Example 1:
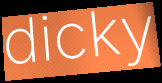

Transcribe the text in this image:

dicky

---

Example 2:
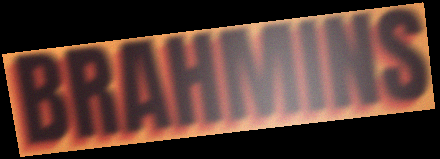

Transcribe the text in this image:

BRAHMINS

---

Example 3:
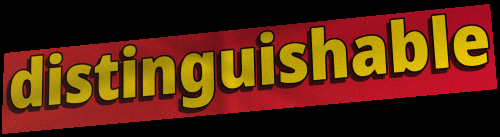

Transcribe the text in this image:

distinguishable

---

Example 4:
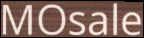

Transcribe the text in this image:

MOsale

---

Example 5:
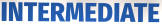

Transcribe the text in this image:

INTERMEDIATE